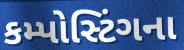
કમ્પોસ્ટિંગના